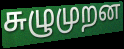
சுழுமுறன